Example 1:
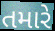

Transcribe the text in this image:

તમારે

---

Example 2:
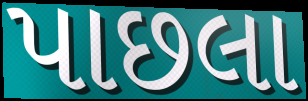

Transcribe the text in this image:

પાછલા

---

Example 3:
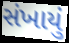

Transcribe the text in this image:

સંખાયું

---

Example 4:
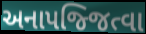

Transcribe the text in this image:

અનાપજ્જિત્વા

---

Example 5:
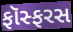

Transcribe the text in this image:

ફૉસ્ફરસ